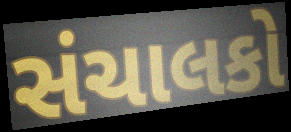
સંચાલકો